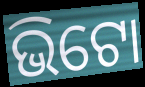
ଭିଟୋ